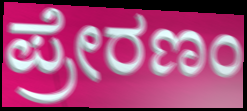
ಪ್ರೇರಣಂ